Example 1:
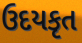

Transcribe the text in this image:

ઉદયકૃત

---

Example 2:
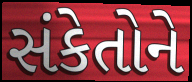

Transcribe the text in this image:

સંકેતોને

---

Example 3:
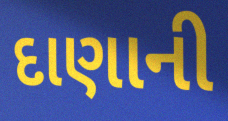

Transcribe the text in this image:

દાણાની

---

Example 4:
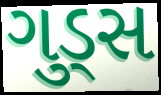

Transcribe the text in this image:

ગુડ્સ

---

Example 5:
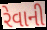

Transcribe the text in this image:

રેવાની